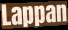
Lappan